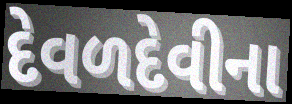
દેવળદેવીના